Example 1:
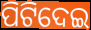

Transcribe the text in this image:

ପିଟିଦେଇ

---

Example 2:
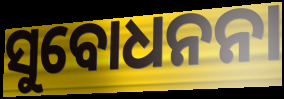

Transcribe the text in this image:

ସୁବୋଧନନା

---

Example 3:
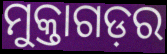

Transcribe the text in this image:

ମୁକ୍ତାଗଡ଼ର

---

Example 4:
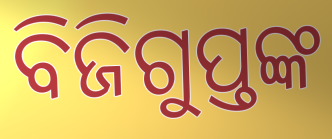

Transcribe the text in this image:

ବିଜିଗୁପ୍ତଙ୍କ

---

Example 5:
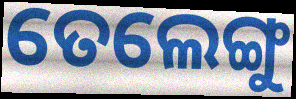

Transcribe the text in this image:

ତେଲେଙ୍ଗୁ